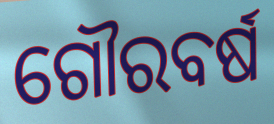
ଗୌରବର୍ଷ